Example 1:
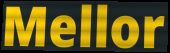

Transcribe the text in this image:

Mellor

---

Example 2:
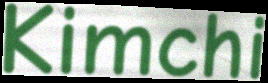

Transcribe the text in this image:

Kimchi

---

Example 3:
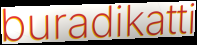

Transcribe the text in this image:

buradikatti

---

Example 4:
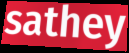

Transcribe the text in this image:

sathey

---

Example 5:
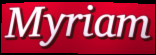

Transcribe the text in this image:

Myriam